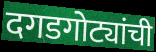
दगडगोट्यांची